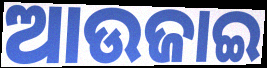
ଆଉଜାଇ